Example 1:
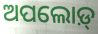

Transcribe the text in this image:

ଅପଲୋଡ଼୍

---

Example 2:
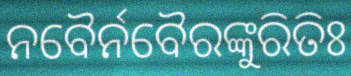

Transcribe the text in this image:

ନବୈର୍ନବୈରଙ୍କୁରିତିଃ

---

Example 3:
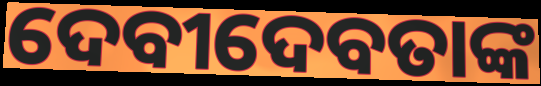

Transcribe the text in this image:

ଦେବୀଦେବତାଙ୍କ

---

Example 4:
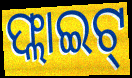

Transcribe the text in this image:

ଫ୍ଲାଇଟ୍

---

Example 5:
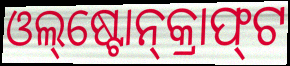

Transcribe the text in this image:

ଓଲ୍‌ଷ୍ଟୋନ୍‌କ୍ରାଫ୍‌ଟ